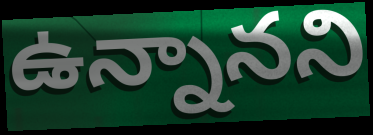
ఉన్నానని